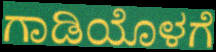
ಗಾಡಿಯೊಳಗೆ